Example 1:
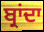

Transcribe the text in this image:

ਬ੍ਰਾਂਦਾ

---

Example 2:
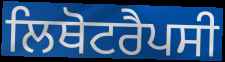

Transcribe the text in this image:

ਲਿਥੋਟਰੈਪਸੀ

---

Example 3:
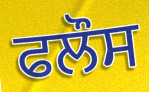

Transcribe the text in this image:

ਫਲੌਸ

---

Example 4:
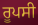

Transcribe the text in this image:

ਰੂਪਸੀ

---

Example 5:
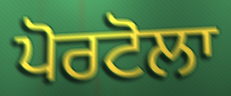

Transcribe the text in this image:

ਪੋਰਟੋਲਾ